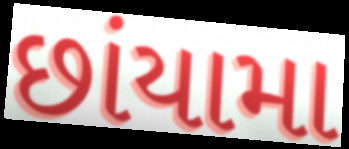
છાંયામા